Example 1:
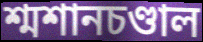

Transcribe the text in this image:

শ্মশানচণ্ডাল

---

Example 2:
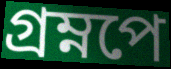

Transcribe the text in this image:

গ্রম্নপে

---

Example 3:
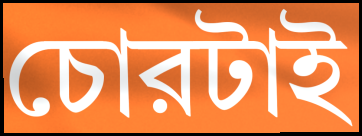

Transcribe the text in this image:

চোরটাই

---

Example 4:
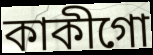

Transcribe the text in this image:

কাকীগো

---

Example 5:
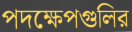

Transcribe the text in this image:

পদক্ষেপগুলির